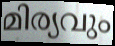
മിര്യവും